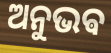
ଅନୁଭଵ